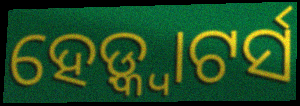
ହେଡ଼୍କ୍ୱାଟର୍ସ